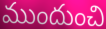
ముందుంచి